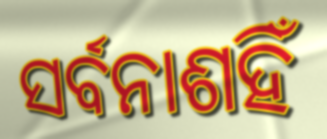
ସର୍ବନାଶହିଁ